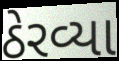
ઠેરવ્યા